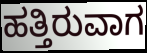
ಹತ್ತಿರುವಾಗ